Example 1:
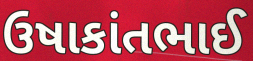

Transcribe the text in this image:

ઉષાકાંતભાઈ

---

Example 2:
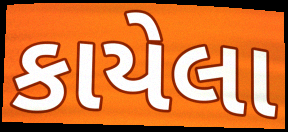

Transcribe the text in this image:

કાયેલા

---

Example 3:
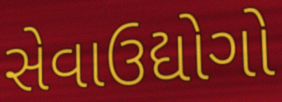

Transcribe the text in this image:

સેવાઉદ્યોગો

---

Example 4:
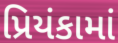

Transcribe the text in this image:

પ્રિયંકામાં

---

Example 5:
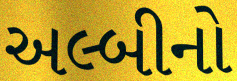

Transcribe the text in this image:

અલ્બીનો